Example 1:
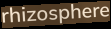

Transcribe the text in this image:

rhizosphere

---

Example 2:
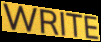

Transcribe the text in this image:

WRITE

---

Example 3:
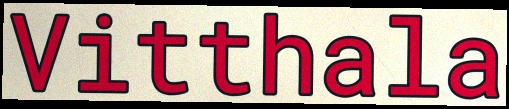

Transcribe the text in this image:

Vitthala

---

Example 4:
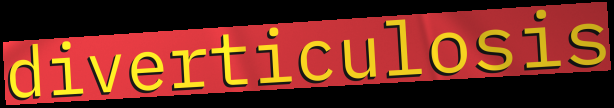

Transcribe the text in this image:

diverticulosis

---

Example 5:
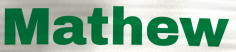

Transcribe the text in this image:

Mathew